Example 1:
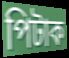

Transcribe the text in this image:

পিটাক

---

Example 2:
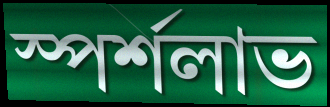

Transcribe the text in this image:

স্পর্শলাভ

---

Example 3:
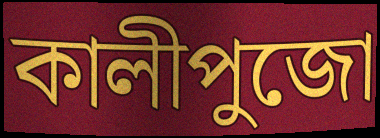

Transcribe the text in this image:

কালীপুজো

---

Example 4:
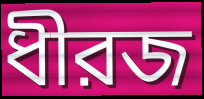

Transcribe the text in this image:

ধীরজ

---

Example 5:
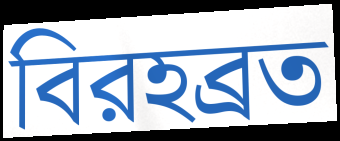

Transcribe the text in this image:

বিরহব্রত